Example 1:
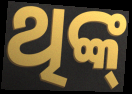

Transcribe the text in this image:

ଥିଙ୍କ୍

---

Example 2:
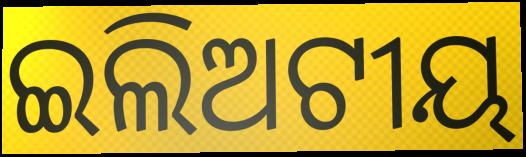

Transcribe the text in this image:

ଇଲିଅଟୀୟ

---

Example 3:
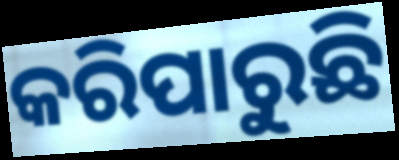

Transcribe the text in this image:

କରିପାରୁଛି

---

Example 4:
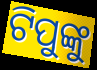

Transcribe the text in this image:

ଟିପୁଙ୍କୁ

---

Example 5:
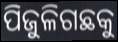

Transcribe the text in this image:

ପିଜୁଳିଗଛକୁ